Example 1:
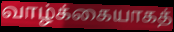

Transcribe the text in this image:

வாழ்க்கையாகத்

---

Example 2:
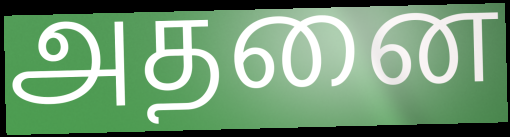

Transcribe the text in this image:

அதனை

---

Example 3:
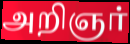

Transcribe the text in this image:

அறிஞர்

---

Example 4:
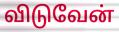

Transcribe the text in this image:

விடுவேன்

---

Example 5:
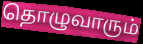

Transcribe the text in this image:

தொழுவாரும்